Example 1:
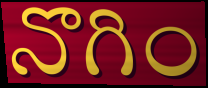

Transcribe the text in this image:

నొగిం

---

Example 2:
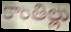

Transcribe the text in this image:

కాంతిల్లు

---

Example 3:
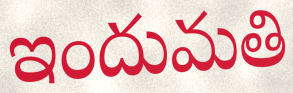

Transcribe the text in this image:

ఇందుమతి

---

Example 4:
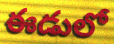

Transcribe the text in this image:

ఈడులో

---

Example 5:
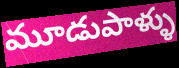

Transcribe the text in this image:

మూడుపాళ్ళు